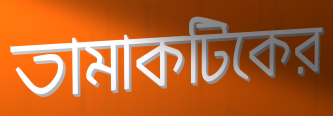
তামাকটিকের